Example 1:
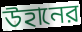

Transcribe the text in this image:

উহানের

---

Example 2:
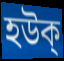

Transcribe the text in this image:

হউক্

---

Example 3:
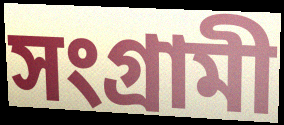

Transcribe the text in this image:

সংগ্রামী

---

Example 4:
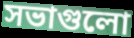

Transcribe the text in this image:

সভাগুলো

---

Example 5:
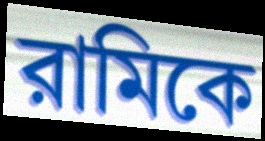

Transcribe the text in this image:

রামিকে